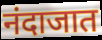
नंदाजात